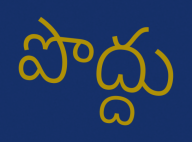
పొద్దు